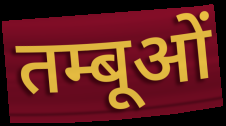
तम्बूओं